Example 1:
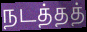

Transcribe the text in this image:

நடத்தத்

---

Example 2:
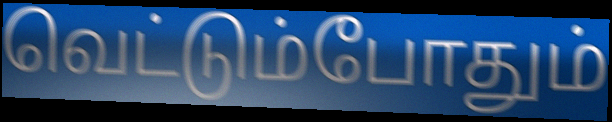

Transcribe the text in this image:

வெட்டும்போதும்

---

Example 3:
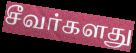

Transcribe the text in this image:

சீவர்களது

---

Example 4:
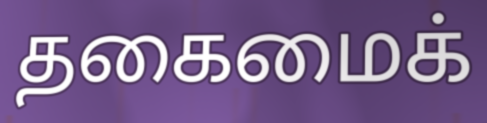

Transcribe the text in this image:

தகைமைக்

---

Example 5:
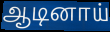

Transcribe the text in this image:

ஆடினாய்